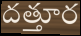
దత్తూర